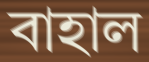
বাহাল